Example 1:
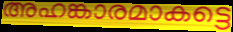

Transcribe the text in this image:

അഹങ്കാരമാകട്ടെ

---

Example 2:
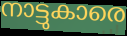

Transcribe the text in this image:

നാട്ടുകാരെ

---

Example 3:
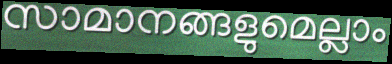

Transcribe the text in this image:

സാമാനങ്ങളുമെല്ലാം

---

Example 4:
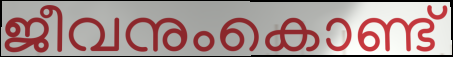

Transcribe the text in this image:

ജീവനുംകൊണ്ട്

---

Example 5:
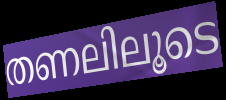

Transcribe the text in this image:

തണലിലൂടെ